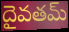
దైవతమ్